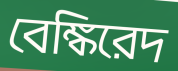
বেঙ্কিরেদ